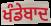
ਖੰਡੇਬਾਦ